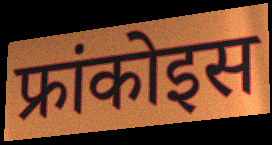
फ्रांकोइस